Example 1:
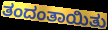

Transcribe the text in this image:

ತಂದಂತಾಯಿತು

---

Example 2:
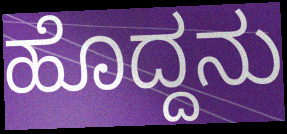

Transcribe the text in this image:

ಹೊದ್ದನು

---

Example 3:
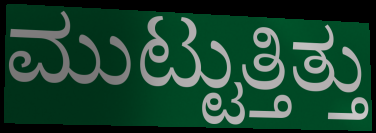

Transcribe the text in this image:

ಮುಟ್ಟುತ್ತಿತ್ತು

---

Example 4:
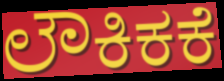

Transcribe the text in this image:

ಲೌಕಿಕಕೆ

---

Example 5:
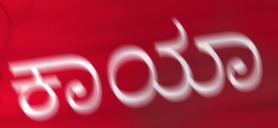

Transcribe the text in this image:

ಕಾಯಾ